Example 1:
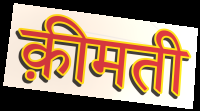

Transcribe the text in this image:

क़ीमती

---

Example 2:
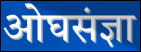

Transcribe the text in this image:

ओघसंज्ञा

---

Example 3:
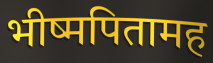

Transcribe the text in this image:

भीष्मपितामह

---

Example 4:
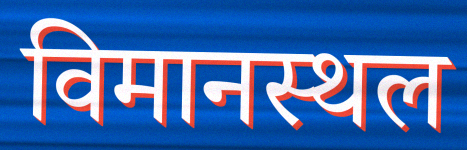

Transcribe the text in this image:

विमानस्थल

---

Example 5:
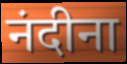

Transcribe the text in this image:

नंदीना